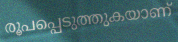
രൂപപ്പെടുത്തുകയാണ്